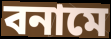
বনামে